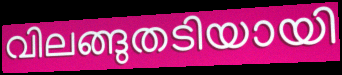
വിലങ്ങുതടിയായി